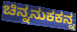
ಚಿನ್ನನುಕಕನ್ನ